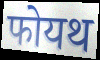
फोयथ